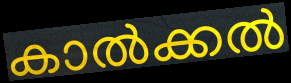
കാൽക്കൽ